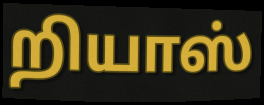
றியாஸ்